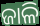
ଜାଳି